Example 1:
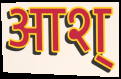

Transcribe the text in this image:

आश्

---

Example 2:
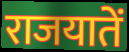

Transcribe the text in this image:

राजयातें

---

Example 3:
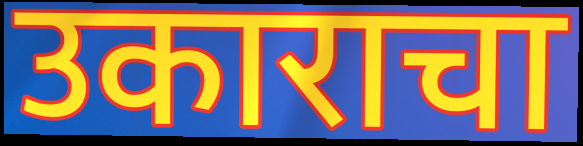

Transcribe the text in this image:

उकाराचा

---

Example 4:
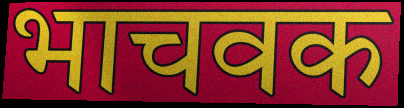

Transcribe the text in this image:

भाचवक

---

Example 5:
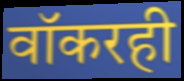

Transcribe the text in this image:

वॉकरही